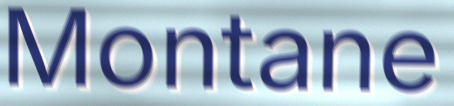
Montane